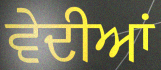
ਵੇਦੀਆਂ